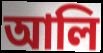
আলি